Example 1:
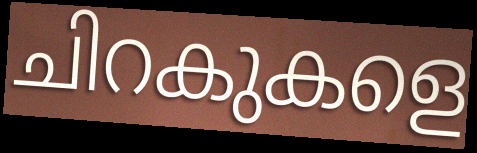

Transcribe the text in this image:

ചിറകുകളെ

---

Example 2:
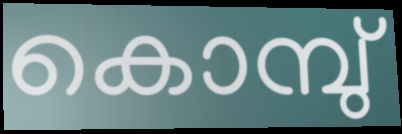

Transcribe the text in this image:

കൊമ്പു്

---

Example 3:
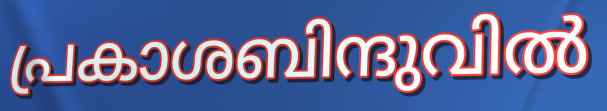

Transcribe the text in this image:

പ്രകാശബിന്ദുവിൽ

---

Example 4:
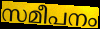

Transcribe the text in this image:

സമീപനം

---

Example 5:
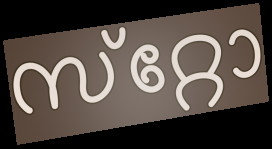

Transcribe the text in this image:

സ്‌റ്റോ